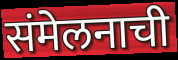
संमेलनाची